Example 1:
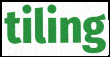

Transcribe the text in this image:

tiling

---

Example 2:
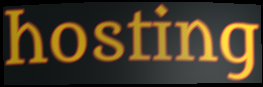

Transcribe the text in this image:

hosting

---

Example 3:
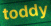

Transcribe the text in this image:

toddy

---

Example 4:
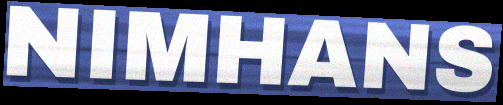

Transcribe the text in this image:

NIMHANS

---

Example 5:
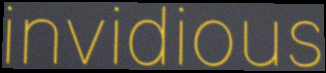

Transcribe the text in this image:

invidious